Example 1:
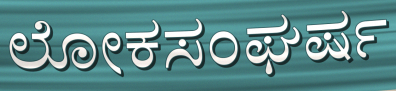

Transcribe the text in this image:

ಲೋಕಸಂಘರ್ಷ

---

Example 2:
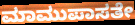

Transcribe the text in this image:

ಮಾಮುಪಾಸತೇ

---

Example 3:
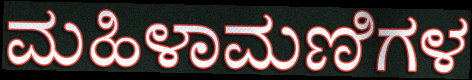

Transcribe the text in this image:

ಮಹಿಳಾಮಣಿಗಳ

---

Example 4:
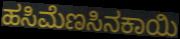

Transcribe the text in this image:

ಹಸಿಮೆಣಸಿನಕಾಯಿ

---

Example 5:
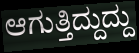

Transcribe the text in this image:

ಆಗುತ್ತಿದ್ದುದ್ದು